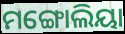
ମଙ୍ଗୋଲିୟା